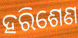
ହରିଶେଣ